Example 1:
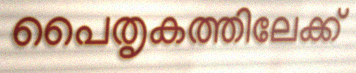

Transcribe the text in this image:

പൈതൃകത്തിലേക്ക്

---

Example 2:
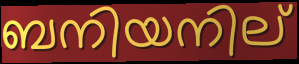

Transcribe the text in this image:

ബനിയനില്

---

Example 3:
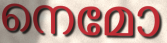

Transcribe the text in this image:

നെമോ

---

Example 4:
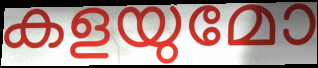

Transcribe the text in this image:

കളയുമോ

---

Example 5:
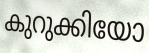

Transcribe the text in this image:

കുറുക്കിയോ